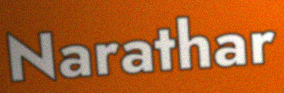
Narathar